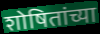
शोषितांच्या